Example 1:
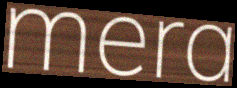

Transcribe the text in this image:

mera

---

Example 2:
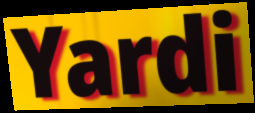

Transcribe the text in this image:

Yardi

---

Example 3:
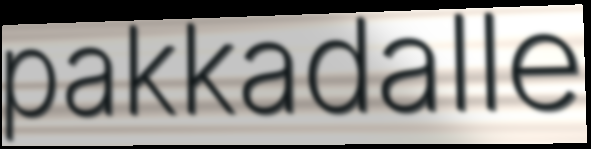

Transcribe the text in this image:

pakkadalle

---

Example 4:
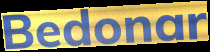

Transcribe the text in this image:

Bedonar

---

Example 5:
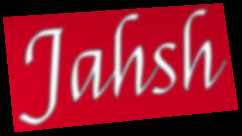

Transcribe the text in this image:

Jahsh